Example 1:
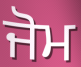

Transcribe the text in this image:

ਜੋਮ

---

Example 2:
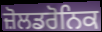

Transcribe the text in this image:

ਜ਼ੋਲਡਰੋਨਿਕ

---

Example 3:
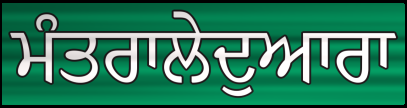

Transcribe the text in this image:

ਮੰਤਰਾਲੇਦੁਆਰਾ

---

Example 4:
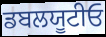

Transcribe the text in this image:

ਡਬਲਯੂਟੀਓ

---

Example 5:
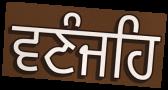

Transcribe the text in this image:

ਵਣੰਜਹਿ